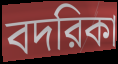
বদরিকা